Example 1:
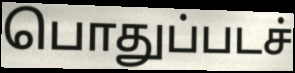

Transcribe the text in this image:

பொதுப்படச்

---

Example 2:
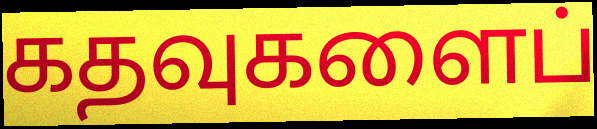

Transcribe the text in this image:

கதவுகளைப்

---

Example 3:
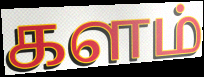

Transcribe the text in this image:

களம்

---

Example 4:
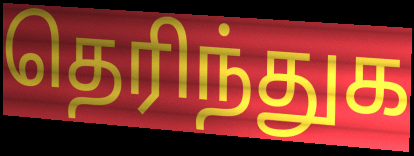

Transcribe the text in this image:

தெரிந்துக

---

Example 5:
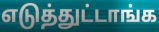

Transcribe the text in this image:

எடுத்துட்டாங்க